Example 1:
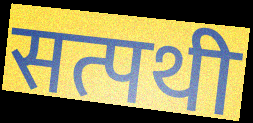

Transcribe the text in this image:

सत्पथी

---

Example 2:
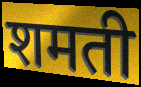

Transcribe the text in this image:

शमती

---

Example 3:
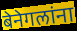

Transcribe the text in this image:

बेनेगलांना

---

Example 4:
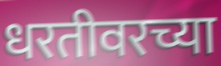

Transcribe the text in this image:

धरतीवरच्या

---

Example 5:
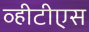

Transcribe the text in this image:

व्हीटीएस